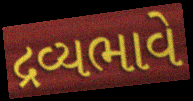
દ્રવ્યભાવે